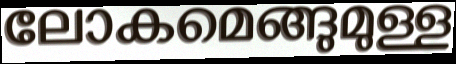
ലോകമെങ്ങുമുള്ള